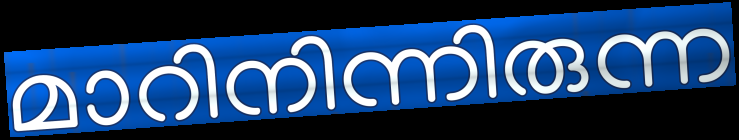
മാറിനിന്നിരുന്ന